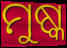
ମୁଷ୍କ